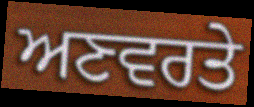
ਅਣਵਰਤੇ